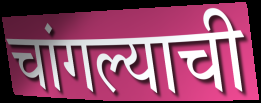
चांगल्याची